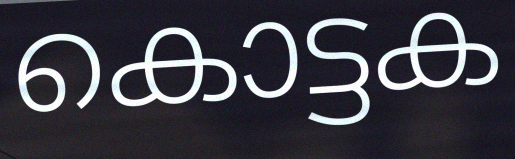
കൊട്ടക